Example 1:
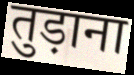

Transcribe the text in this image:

तुड़ाना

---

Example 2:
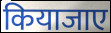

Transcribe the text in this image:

कियाजाए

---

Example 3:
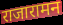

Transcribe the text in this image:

राजारामन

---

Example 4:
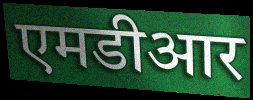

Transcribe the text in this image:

एमडीआर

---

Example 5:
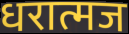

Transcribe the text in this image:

धरात्मज